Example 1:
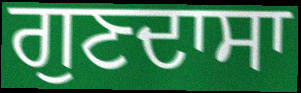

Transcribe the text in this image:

ਗੁਣਦਾਸਾ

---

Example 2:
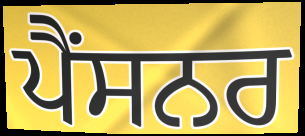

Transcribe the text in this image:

ਪੈਂਸਨਰ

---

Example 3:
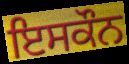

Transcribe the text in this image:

ਇਸਕੌਨ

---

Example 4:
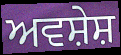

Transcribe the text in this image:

ਅਵਸ਼ੇਸ਼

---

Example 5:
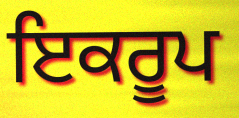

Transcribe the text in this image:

ਇਕਰੂਪ